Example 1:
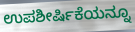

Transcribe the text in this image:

ಉಪಶೀರ್ಷಿಕೆಯನ್ನೂ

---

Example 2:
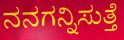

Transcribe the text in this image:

ನನಗನ್ನಿಸುತ್ತೆ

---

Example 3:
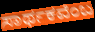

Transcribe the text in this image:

ಸಾರ್ಥಕವೆಂಬ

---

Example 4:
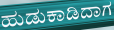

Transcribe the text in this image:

ಹುಡುಕಾಡಿದಾಗ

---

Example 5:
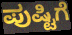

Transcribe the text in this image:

ಪುಷ್ಟಿಗೆ